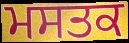
ਮਸਤਕ